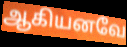
ஆகியனவே